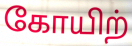
கோயிற்